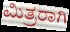
ಮಿತ್ರರಾಗಿ